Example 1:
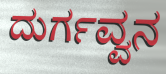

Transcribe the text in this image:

ದುರ್ಗವ್ವನ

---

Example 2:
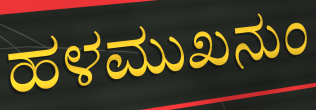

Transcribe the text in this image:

ಹಳಮುಖನುಂ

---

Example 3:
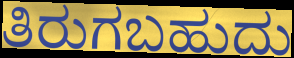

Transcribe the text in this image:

ತಿರುಗಬಹುದು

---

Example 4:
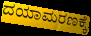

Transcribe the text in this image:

ದಯಾಮರಣಕ್ಕೆ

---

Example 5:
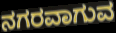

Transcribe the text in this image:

ನಗರವಾಗುವ